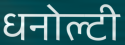
धनोल्‍टी